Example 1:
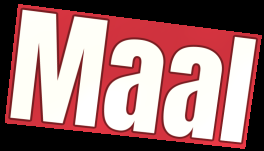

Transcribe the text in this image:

Maal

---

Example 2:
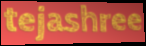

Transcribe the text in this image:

tejashree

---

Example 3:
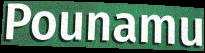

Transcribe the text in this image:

Pounamu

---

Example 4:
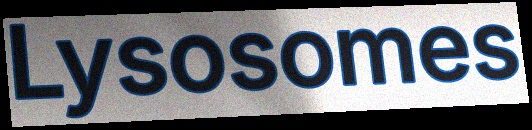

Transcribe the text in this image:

Lysosomes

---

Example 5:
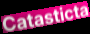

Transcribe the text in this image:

Catasticta